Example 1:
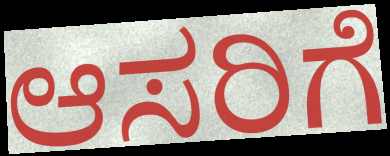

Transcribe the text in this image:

ಆಸರಿಗೆ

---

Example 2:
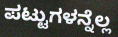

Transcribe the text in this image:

ಪಟ್ಟುಗಳನ್ನೆಲ್ಲ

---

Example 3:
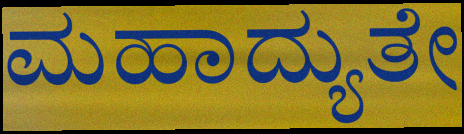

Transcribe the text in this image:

ಮಹಾದ್ಯುತೇ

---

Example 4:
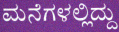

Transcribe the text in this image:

ಮನೆಗಳಲ್ಲಿದ್ದು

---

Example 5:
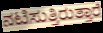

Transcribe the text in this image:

ನಟಿಸುತ್ತಿರುತ್ತಾರೆ